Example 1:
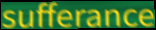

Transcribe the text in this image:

sufferance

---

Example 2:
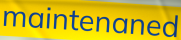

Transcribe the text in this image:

maintenaned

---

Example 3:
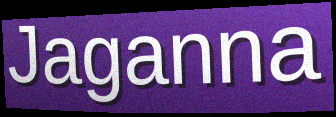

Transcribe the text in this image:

Jaganna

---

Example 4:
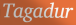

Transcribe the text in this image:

Tagadur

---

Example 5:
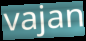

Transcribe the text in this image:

vajan